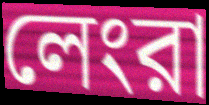
লেংরা